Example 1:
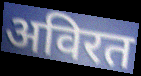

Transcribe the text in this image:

अविरत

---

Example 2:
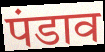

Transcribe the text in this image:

पंडाव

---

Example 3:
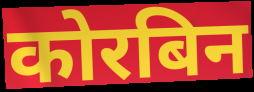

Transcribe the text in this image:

कोरबिन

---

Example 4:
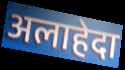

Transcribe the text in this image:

अलाहेदा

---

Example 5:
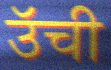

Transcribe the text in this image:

उॅची